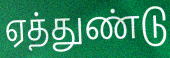
ஏத்துண்டு